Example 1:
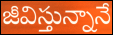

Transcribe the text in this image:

జీవిస్తున్నానే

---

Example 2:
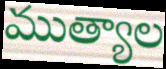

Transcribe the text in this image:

ముత్యాల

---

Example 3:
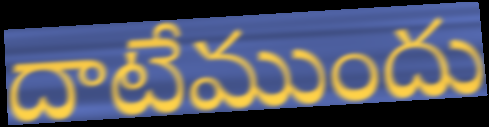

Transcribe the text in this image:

దాటేముందు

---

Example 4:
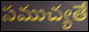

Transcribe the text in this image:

సముచ్యతే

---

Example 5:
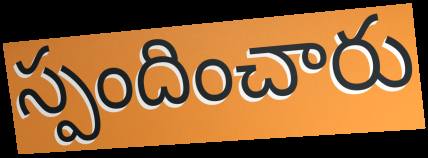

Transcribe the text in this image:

స్పందించారు